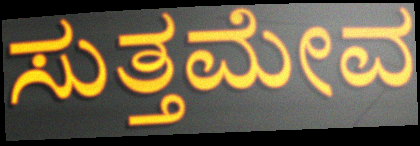
ಸುತ್ತಮೇವ